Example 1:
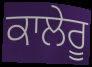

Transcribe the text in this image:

ਕਾਲੇਰੂ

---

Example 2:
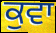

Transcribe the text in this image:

ਕੁਵਾ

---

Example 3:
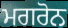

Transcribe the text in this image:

ਮਗਰੋਨ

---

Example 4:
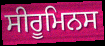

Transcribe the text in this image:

ਸੀਰੂਮਿਨਸ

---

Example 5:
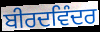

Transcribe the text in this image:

ਬੀਰਦਵਿੰਦਰ